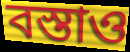
বস্তাও